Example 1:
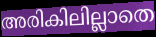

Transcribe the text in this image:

അരികിലില്ലാതെ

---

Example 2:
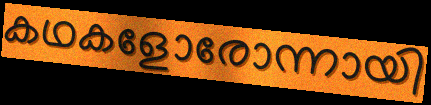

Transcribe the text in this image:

കഥകളോരോന്നായി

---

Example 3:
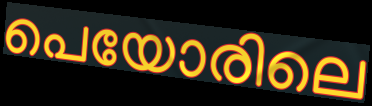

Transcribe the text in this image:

പെയോരിലെ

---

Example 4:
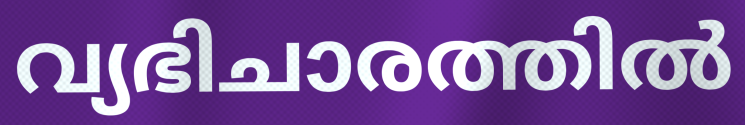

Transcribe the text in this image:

വ്യഭിചാരത്തിൽ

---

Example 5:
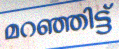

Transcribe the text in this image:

മറഞ്ഞിട്ട്